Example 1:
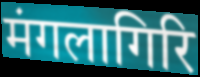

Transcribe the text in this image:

मंगलागिरि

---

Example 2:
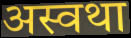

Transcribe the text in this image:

अस्वथा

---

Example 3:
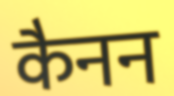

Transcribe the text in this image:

कैनन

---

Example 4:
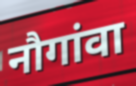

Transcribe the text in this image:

नौगांवा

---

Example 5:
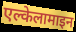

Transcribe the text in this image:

एल्केलामाइन